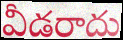
వీడరాదు